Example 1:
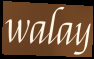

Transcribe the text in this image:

walay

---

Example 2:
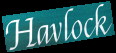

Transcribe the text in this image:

Havlock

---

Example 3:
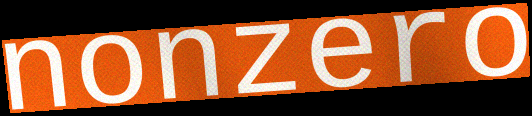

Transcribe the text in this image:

nonzero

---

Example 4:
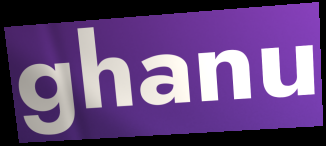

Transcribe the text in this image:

ghanu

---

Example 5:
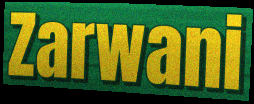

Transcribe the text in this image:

Zarwani